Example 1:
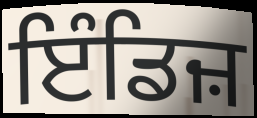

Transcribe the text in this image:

ਇੰਡਿਜ਼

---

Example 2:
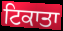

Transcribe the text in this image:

ਟਿਕਾਤਾ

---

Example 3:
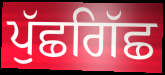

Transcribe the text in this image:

ਪੁੱਛਗਿੱਛ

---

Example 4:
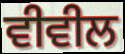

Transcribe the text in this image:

ਵੀਵੀਲ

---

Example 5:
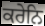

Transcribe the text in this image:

ਕਰੇਨਿ